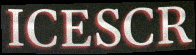
ICESCR